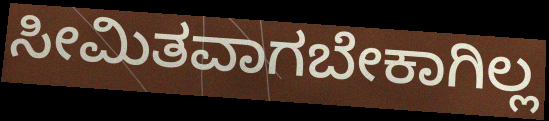
ಸೀಮಿತವಾಗಬೇಕಾಗಿಲ್ಲ